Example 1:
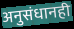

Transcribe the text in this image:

अनुसंधानही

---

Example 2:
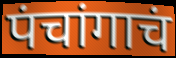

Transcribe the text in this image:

पंचांगाचं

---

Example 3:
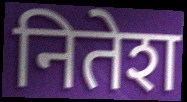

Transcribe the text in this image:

नितेश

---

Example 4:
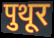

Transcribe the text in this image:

पुथूर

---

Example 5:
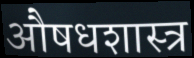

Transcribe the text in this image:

औषधशास्त्र